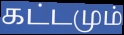
கட்டமும்